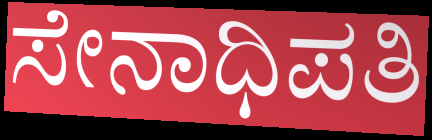
ಸೇನಾಧಿಪತಿ